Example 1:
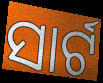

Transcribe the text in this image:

ସାର୍ଟ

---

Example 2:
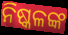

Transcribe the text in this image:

ନିଷ୍କଳଙ୍କ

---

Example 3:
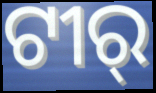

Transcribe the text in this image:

ଟୀର୍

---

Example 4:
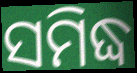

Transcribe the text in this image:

ସମିଦ୍ଧ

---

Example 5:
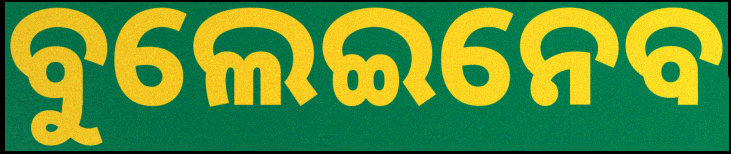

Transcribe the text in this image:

ବୁଲେଇନେବ